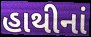
હાથીનાં